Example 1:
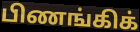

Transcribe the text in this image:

பிணங்கிக்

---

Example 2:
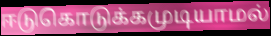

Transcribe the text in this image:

ஈடுகொடுக்கமுடியாமல்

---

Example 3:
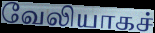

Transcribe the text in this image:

வேலியாகச்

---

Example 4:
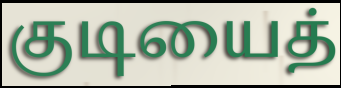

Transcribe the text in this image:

குடியைத்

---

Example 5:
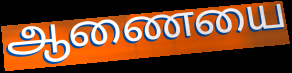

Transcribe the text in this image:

ஆணையை